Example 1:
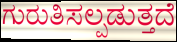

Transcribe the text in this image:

ಗುರುತಿಸಲ್ಪಡುತ್ತದೆ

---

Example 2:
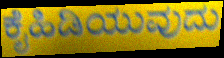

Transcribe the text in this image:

ಕೈಹಿಡಿಯುವುದು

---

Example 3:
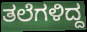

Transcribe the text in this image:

ತಲೆಗಳಿದ್ದ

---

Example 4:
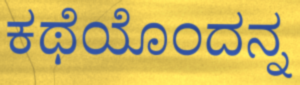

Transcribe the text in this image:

ಕಥೆಯೊಂದನ್ನ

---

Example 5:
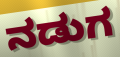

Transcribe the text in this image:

ನಡುಗ